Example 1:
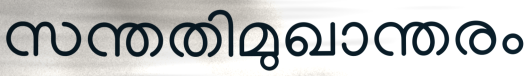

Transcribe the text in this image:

സന്തതിമുഖാന്തരം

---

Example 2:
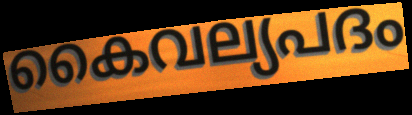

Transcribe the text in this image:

കൈവല്യപദം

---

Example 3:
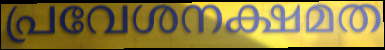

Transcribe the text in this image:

പ്രവേശനക്ഷമത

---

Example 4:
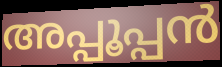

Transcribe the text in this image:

അപ്പൂപ്പൻ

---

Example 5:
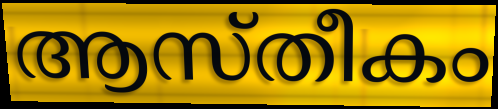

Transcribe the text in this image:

ആസ്തീകം